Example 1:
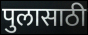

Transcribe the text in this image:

पुलासाठी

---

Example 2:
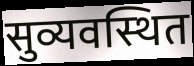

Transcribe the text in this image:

सुव्यवस्थित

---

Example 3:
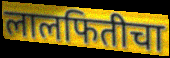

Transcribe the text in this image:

लालफितीचा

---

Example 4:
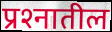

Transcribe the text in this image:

प्रश्नातील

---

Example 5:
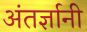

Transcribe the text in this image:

अंतर्ज्ञानी